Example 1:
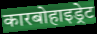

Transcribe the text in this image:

कारबोहाइड्रेट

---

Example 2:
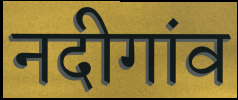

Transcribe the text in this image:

नदीगांव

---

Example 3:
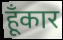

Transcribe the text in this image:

हूँकार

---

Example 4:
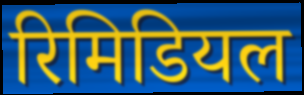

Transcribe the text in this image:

रिमिडियल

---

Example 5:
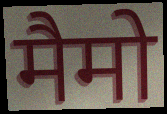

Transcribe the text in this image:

मैमो